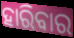
ହାରିବାର